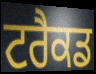
ਟਰੈਕਡ